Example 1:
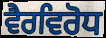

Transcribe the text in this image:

ਵੈਰਵਿਰੋਧ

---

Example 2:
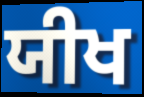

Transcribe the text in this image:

ਯੀਖ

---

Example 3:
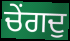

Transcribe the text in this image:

ਚੇਂਗਦੁ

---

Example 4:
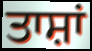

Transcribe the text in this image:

ਤਾਸ਼ਾਂ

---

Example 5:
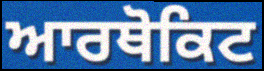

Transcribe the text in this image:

ਆਰਥੋਕਿਟ